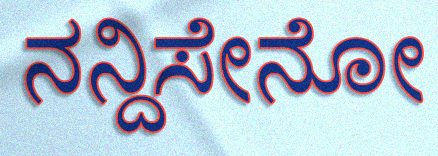
ನನ್ದಿಸೇನೋ